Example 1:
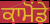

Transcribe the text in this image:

ਕਾਮੋਂਡੇ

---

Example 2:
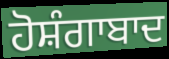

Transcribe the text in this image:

ਹੋਸ਼ੰਗਾਬਾਦ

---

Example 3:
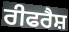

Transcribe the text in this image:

ਰੀਫਰੈਸ਼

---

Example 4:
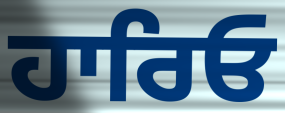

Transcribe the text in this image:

ਹਾਰਿਓ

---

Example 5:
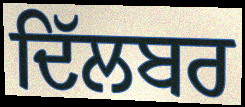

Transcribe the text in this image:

ਦਿੱਲਬਰ